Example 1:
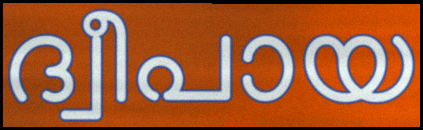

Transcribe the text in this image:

ദ്വീപായ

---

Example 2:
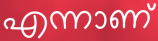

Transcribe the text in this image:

എന്നാണ്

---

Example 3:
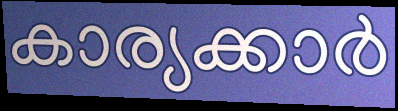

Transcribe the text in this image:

കാര്യക്കാർ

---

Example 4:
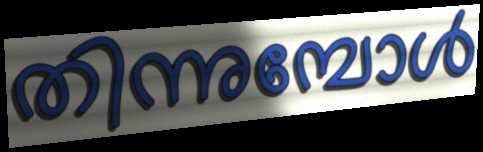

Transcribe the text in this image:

തിന്നുമ്പോൾ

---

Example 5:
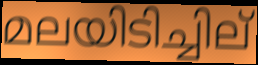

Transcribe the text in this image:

മലയിടിച്ചില്